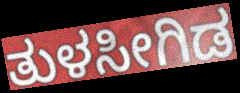
ತುಳಸೀಗಿಡ